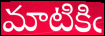
మాటికిఁ